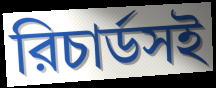
রিচার্ডসই